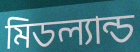
মিডল্যান্ড